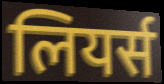
लियर्स